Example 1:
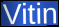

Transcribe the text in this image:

Vitin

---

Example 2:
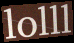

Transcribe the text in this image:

lolll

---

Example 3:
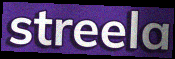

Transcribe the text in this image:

streela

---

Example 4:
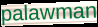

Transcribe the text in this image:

palawman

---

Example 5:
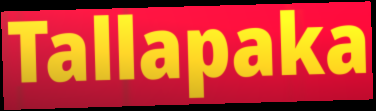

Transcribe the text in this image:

Tallapaka